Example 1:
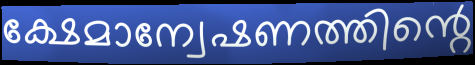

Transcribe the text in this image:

ക്ഷേമാന്വേഷണത്തിന്റെ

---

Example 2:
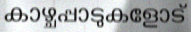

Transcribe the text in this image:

കാഴ്ചപ്പാടുകളോട്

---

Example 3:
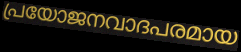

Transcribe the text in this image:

പ്രയോജനവാദപരമായ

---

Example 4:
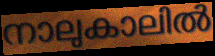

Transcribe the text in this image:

നാലുകാലിൽ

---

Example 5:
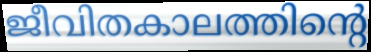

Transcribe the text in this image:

ജീവിതകാലത്തിന്റെ